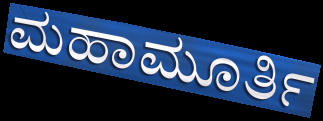
ಮಹಾಮೂರ್ತಿ